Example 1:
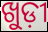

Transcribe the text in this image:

ଖୁଡ଼ୀ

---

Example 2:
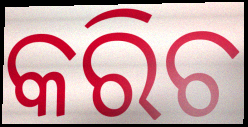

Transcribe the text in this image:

କରିଚ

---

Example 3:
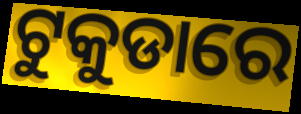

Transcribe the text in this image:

ଟୁକୁଡାରେ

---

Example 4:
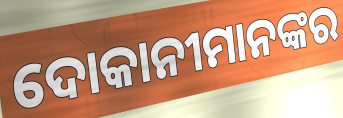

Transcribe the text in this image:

ଦୋକାନୀମାନଙ୍କର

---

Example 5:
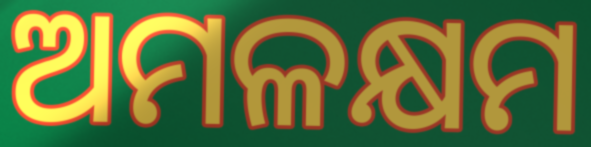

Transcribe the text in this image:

ଅମଳକ୍ଷମ